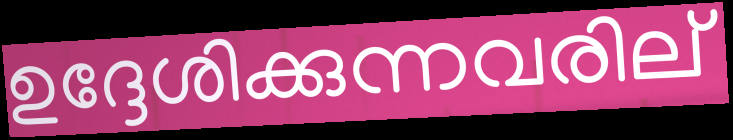
ഉദ്ദേശിക്കുന്നവരില്